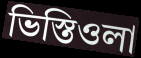
ভিস্তিওলা